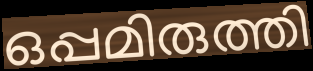
ഒപ്പമിരുത്തി